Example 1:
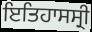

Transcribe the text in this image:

ਇਤਿਹਾਸਸ੍ਰੀ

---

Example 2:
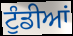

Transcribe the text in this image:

ਟੁੰਡੀਆਂ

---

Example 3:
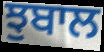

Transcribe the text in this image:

ਝੁਬਾਲ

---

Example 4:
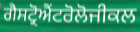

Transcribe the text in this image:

ਗੈਸਟ੍ਰੋਐਂਟਰੋਲੋਜੀਕਲ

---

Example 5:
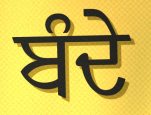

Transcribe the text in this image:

ਬੰਦੇ